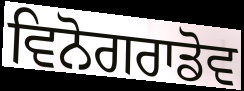
ਵਿਨੋਗਰਾਡੋਵ